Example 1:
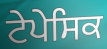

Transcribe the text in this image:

ਟੇਪੇਸਿਕ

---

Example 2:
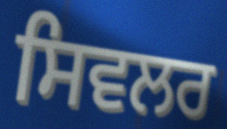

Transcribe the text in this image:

ਸਿਵਲਰ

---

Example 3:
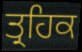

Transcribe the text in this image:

ਤ੍ਰਹਿਕ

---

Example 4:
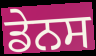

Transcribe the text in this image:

ਡੇਨਸ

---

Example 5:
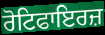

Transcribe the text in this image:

ਰੋਟਿਫਾਇਰਜ਼